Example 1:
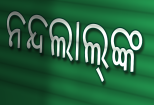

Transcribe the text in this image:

ନନ୍ଦଲାଲ୍‌ଙ୍କ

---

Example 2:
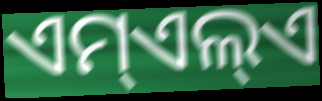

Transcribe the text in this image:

ଏମ୍ଏଲ୍ଏ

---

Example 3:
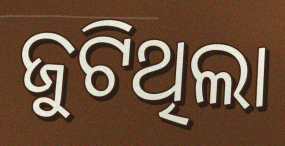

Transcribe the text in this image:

ଜୁଟିଥିଲା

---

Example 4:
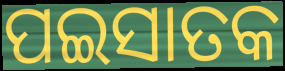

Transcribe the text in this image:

ପଇସାତକ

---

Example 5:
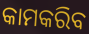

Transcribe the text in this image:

କାମକରିବ